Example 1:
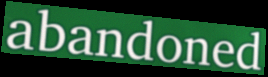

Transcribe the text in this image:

abandoned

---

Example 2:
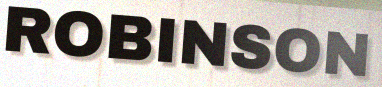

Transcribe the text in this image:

ROBINSON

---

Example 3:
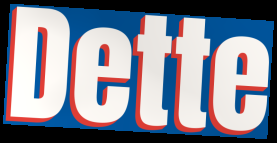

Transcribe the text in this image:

Dette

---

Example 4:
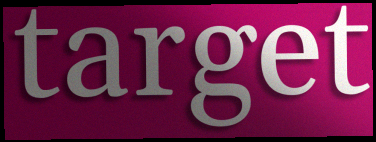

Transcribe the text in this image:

target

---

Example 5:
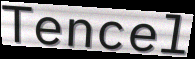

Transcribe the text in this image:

Tencel